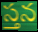
స్తన